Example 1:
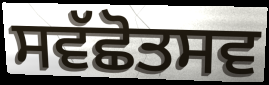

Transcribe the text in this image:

ਸਵੱਛੋਤਸਵ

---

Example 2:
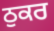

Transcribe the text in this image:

ਠੁਕਰ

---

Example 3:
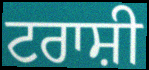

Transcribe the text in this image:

ਟਰਾਸ਼ੀ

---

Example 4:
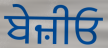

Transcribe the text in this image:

ਬੇਜ਼ੀਓ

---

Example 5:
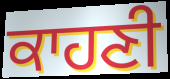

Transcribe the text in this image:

ਕਾਹਣੀ